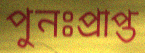
পুনঃপ্রাপ্ত